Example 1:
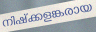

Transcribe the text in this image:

നിഷ്ക്കളങ്കരായ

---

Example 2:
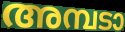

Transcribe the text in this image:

അമ്പടാ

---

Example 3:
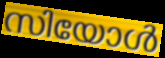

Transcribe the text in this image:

സിയോൾ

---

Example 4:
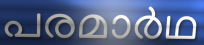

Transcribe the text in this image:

പരമാർഥ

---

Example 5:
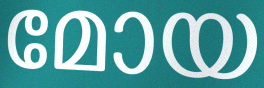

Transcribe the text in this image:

മോയ